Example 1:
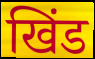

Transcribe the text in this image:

खिंड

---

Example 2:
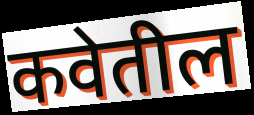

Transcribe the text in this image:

कवेतील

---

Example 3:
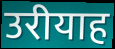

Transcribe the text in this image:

उरीयाह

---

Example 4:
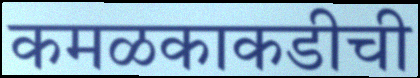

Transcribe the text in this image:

कमळकाकडीची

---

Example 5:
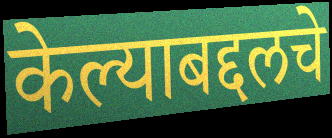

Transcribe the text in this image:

केल्याबद्दलचे